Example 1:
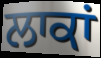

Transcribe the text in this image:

ਲਾਕਾਂ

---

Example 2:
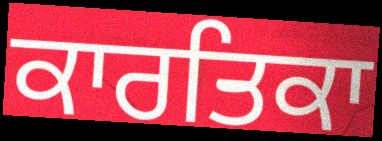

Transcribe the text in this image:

ਕਾਰਤਿਕਾ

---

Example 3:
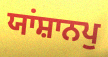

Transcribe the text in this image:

ਯਾਂਸ਼ਾਨਪੁ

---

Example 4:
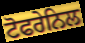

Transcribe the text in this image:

ਟੋਫਰੇਨਿਲ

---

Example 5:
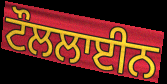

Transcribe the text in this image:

ਟੌਲਲਾਈਨ